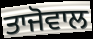
ਤਾਜੋਵਾਲ